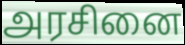
அரசினை